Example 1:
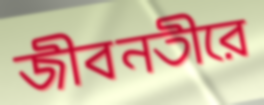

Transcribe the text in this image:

জীবনতীরে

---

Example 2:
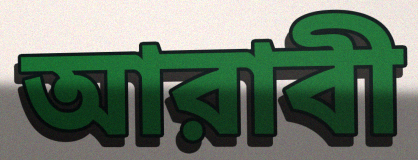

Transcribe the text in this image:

আরাবী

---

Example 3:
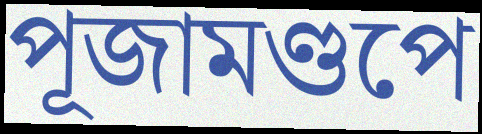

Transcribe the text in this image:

পূজামণ্ডপে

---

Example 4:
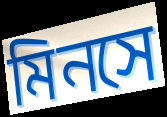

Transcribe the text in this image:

মিনসে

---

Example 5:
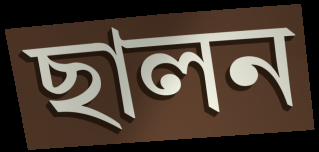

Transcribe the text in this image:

ছালন